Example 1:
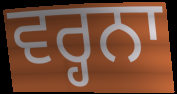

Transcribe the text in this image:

ਵਰ੍ਹਨਾ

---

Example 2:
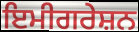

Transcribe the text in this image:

ਇਮੀਗਰੇਸ਼ਨ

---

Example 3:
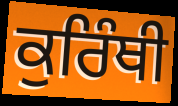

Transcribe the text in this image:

ਕੁਰਿੰਥੀ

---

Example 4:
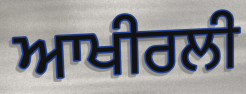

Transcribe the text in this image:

ਆਖੀਰਲੀ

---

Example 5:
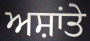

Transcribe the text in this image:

ਅਸ਼ਾਂਤੇ